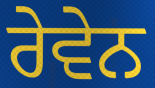
ਰੇਵੇਨ